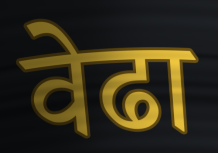
वेढा